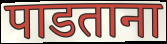
पाडताना